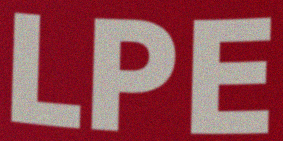
LPE